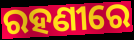
ରହଣୀରେ